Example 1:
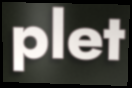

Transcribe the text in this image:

plet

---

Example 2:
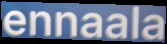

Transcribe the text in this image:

ennaala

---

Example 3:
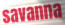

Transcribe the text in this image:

savanna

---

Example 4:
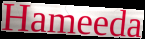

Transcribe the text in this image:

Hameeda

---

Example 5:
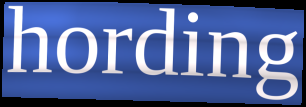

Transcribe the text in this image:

hording